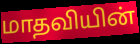
மாதவியின்